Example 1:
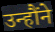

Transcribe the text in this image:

उन्हौंने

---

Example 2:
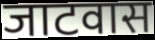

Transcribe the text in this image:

जाटवास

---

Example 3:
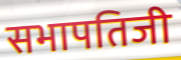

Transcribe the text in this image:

सभापतिजी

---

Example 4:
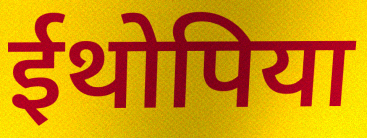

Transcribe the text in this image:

ईथोपिया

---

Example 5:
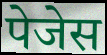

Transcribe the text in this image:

पेजेस